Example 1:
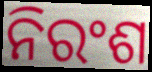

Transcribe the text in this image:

ନିରଂଶ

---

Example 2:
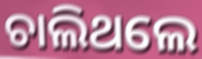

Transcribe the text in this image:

ଚାଲିଥଲେ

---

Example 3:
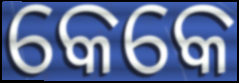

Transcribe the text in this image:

କେକେ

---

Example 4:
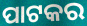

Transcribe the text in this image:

ପାଟକର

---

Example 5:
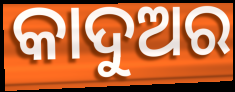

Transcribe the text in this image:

କାଦୁଅର